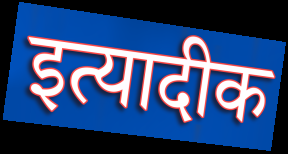
इत्यादीक